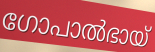
ഗോപാൽഭായ്